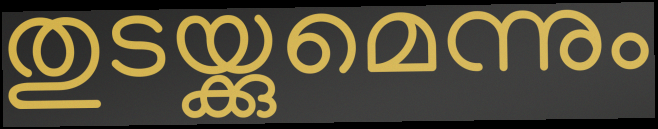
തുടയ്ക്കുമെന്നും